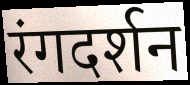
रंगदर्शन